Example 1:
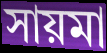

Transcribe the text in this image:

সায়মা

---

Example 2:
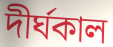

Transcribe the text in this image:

দীর্ঘকাল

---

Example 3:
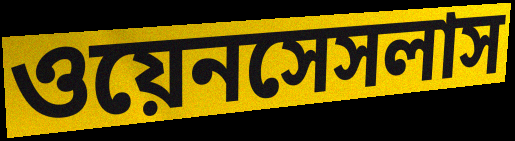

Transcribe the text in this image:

ওয়েনসেসলাস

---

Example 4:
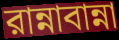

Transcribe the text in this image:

রান্নাবান্না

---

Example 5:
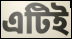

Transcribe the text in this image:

এটিই